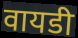
वायडी